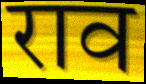
राव